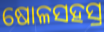
ଷୋଳସହସ୍ର